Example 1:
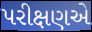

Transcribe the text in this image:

પરીક્ષણએ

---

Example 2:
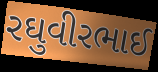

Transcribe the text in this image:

રઘુવીરભાઈ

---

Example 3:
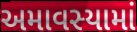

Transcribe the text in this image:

અમાવસ્યામાં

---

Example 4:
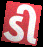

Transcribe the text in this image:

ડી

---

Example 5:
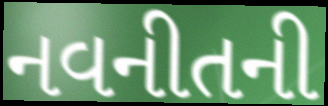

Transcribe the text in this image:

નવનીતની